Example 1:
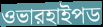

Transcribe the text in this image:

ওভারহাইপড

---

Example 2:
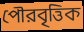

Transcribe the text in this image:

পৌরবৃত্তিক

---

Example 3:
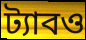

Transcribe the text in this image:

ট্যাবও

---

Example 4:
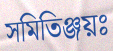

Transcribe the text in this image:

সমিতিঞ্জয়ঃ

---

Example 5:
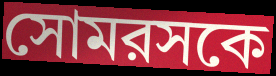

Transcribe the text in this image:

সোমরসকে